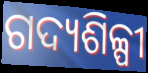
ଗଦ୍ୟଶିଳ୍ପୀ